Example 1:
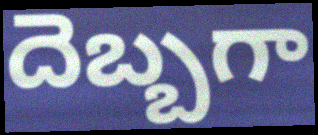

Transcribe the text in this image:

దెబ్బగా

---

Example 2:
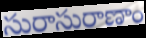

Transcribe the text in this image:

సురాసురాణాం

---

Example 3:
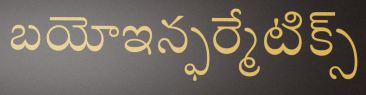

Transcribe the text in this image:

బయోఇన్ఫర్మేటిక్స్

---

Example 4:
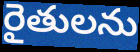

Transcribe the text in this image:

రైతులను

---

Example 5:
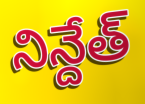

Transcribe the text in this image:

నిన్దేత్